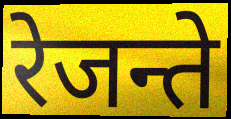
रेजन्ते